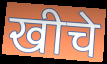
खीचे